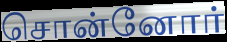
சொன்னோர்